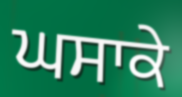
ਘਸਾਕੇ